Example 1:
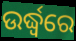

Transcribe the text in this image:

ଉର୍ଦ୍ଧ୍ଵରେ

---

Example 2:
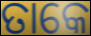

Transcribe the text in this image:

ତାକେ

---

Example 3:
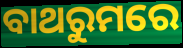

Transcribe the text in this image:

ବାଥରୁମରେ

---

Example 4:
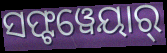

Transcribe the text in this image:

ସଫ୍ଟୱେୟାର୍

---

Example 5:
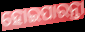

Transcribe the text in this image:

ହୋଇପାରନ୍ତା